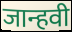
जान्‍हवी